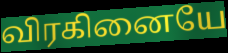
விரகினையே